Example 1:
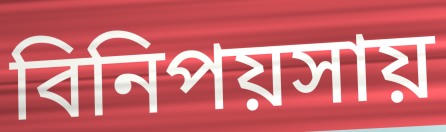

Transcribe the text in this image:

বিনিপয়সায়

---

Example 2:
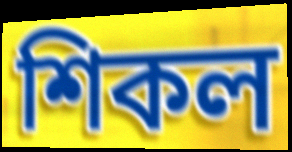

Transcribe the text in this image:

শিকল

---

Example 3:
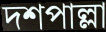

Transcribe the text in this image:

দশপাল্লা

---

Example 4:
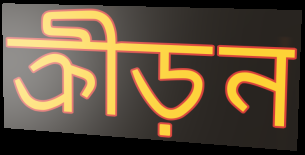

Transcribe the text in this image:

ক্রীড়ন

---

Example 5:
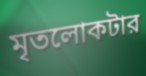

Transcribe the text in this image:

মৃতলোকটার